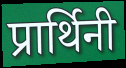
प्रार्थिनी